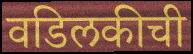
वडिलकीची